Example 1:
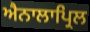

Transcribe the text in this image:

ਐਨਾਲਾਪ੍ਰਿਲ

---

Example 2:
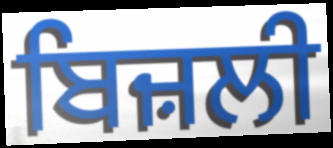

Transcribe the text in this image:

ਬਿਜ਼ਲੀ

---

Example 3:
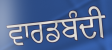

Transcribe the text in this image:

ਵਾਰਡਬੰਦੀ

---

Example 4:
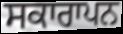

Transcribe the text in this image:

ਸਕਾਰਾਪਨ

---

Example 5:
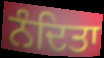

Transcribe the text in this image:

ਨੰਦਿਤਾ